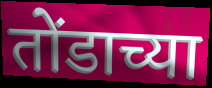
तोंडाच्या